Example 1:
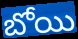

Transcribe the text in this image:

బోయి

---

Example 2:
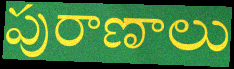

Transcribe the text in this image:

పురాణాలు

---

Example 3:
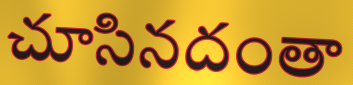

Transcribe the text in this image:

చూసినదంతా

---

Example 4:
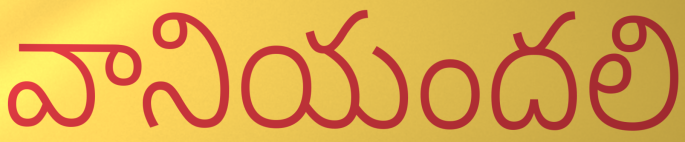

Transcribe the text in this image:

వానియందలి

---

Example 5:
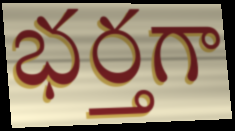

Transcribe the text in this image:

భర్తగా